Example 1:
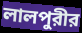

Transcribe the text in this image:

লালপুরীর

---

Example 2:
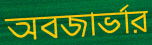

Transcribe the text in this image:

অবজার্ভার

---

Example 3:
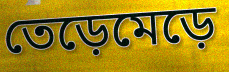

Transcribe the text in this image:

তেড়েমেড়ে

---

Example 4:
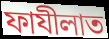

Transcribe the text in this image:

ফাযীলাত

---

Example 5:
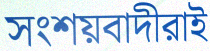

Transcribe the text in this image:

সংশয়বাদীরাই